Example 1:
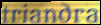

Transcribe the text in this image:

triandra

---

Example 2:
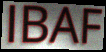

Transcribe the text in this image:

IBAF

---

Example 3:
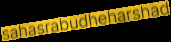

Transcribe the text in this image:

sahasrabudheharshad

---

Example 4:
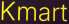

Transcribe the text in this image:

Kmart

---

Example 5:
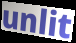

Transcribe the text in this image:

unlit